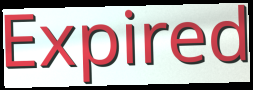
Expired